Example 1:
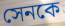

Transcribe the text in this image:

সেনকে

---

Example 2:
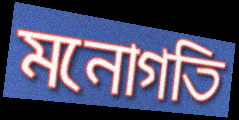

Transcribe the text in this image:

মনোগতি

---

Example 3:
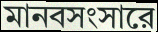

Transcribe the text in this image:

মানবসংসারে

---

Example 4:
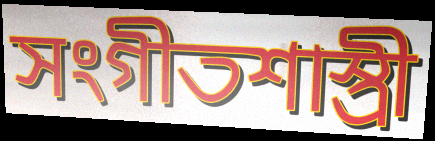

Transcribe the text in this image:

সংগীতশাস্ত্রী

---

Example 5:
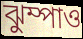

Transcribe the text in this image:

ঝুম্পাও